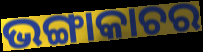
ଭଙ୍ଗାକାଚର